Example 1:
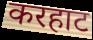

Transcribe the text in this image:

करहाट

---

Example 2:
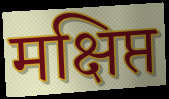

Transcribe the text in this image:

मक्षिप्त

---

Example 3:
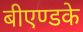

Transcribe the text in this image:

बीएण्डके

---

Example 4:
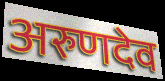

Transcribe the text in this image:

अरुणदेव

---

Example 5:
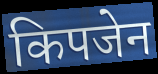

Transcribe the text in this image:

किपजेन